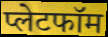
प्लेटफॉम